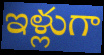
ఇళ్లుగా